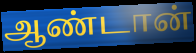
ஆண்டான்